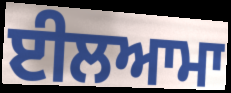
ਈਲਆਮਾ